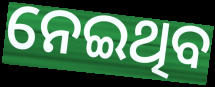
ନେଇଥିବ